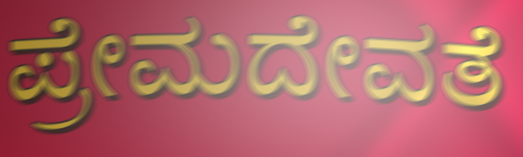
ಪ್ರೇಮದೇವತೆ